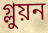
গ্লুয়ন